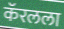
कॅरलला